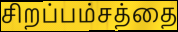
சிறப்பம்சத்தை